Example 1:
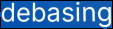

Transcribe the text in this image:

debasing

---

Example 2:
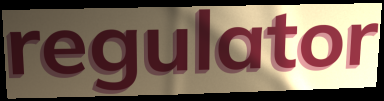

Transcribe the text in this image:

regulator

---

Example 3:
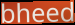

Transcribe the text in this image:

bheed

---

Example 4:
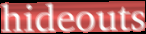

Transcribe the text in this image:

hideouts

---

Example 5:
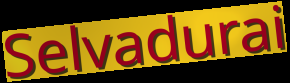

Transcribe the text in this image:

Selvadurai